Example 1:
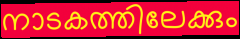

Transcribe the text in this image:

നാടകത്തിലേക്കും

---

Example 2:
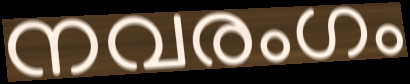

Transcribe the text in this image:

നവരംഗം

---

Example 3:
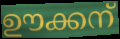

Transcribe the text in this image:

ഊക്കന്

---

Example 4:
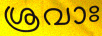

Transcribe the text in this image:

ശ്രവാഃ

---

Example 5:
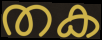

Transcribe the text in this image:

തക